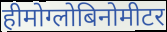
हीमोग्लोबिनोमीटर